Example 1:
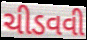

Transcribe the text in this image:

ચીડવવી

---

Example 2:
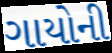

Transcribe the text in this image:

ગાયોની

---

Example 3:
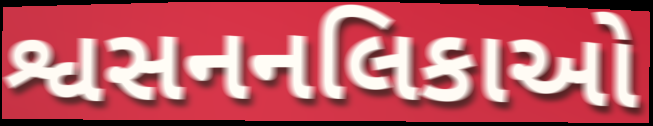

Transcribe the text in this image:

શ્વસનનલિકાઓ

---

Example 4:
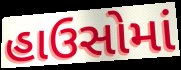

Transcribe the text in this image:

હાઉસોમાં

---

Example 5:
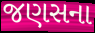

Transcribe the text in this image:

જણસના